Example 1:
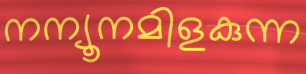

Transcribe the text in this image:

നന്യൂനമിളകുന്ന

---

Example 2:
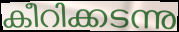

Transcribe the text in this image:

കീറിക്കടന്നു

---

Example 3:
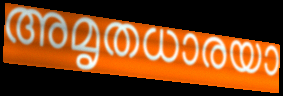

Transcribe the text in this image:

അമൃതധാരയാ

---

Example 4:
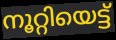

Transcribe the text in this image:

നൂറ്റിയെട്ട്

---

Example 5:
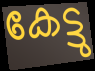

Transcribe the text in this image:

കേട്ടു